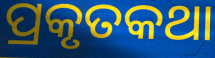
ପ୍ରକୃତକଥା